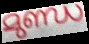
മുണ്ഡ